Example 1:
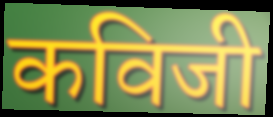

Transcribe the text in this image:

कविजी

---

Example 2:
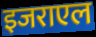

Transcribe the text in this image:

इजराएल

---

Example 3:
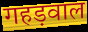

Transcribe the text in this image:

गहड़वाल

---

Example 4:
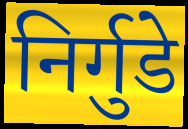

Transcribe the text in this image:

निर्गुडे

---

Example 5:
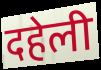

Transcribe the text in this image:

दहेली